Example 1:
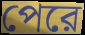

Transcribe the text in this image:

পেরে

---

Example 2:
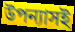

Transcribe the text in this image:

উপন্যাসই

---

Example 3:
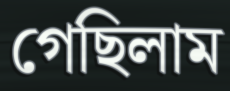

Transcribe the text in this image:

গেছিলাম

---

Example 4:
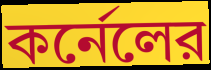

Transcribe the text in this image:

কর্নেলের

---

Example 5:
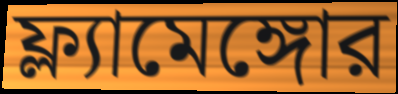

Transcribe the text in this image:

ফ্ল্যামেঙ্গোর